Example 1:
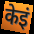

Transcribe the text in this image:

केइं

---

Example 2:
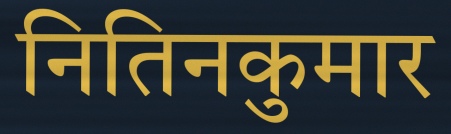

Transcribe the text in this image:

नितिनकुमार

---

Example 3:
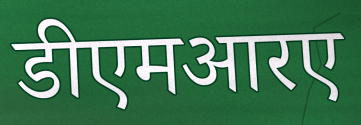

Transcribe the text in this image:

डीएमआरए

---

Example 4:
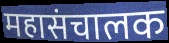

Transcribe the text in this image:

महासंचालक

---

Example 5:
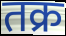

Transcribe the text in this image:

तक्र